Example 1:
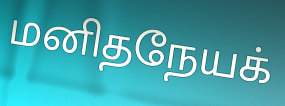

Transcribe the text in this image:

மனிதநேயக்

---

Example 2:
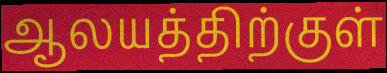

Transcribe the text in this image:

ஆலயத்திற்குள்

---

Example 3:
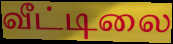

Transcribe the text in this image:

வீட்டிலை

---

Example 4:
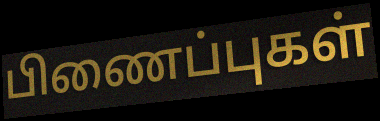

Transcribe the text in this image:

பிணைப்புகள்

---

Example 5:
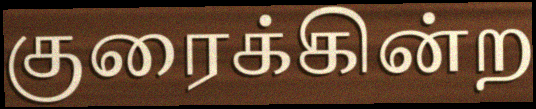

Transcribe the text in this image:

குரைக்கின்ற